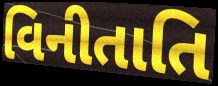
વિનીતાતિ